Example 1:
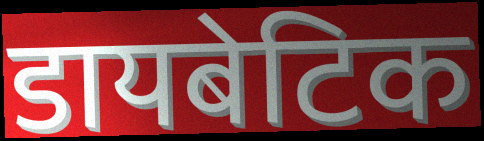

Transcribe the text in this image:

डायबेटिक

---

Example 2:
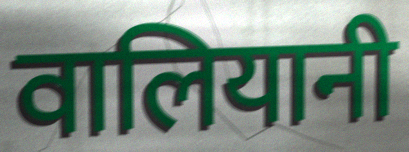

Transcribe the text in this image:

वालियानी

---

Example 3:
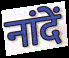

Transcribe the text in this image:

नांदें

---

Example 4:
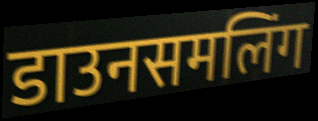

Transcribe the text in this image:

डाउनसमलिंग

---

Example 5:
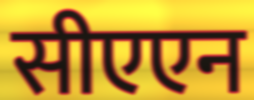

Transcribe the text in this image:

सीएएन